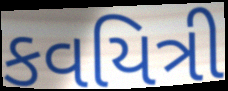
કવયિત્રી